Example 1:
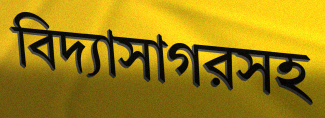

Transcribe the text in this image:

বিদ্যাসাগরসহ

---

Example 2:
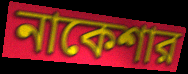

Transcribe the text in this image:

নাকেশার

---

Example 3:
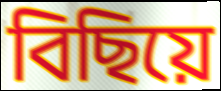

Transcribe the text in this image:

বিছিয়ে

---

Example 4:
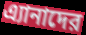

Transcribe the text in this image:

এ্যানাদের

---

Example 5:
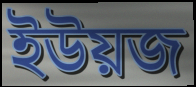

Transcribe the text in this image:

ইউয়জ